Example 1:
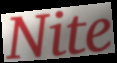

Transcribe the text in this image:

Nite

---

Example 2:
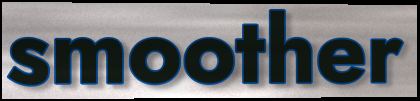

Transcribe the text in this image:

smoother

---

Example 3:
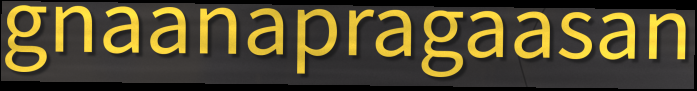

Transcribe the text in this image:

gnaanapragaasan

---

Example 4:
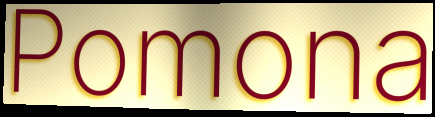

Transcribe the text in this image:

Pomona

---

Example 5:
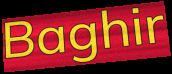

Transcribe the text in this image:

Baghir